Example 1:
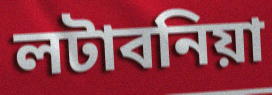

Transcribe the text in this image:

লটাবনিয়া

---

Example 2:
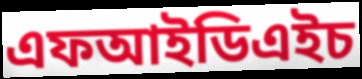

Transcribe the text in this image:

এফআইডিএইচ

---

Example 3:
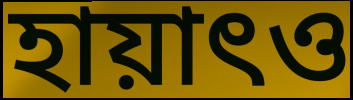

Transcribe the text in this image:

হায়াৎও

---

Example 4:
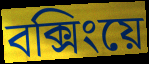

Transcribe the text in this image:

বক্সিংয়ে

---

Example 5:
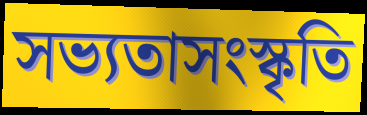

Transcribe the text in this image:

সভ্যতাসংস্কৃতি